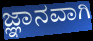
ಜ್ಞಾನವಾಗಿ